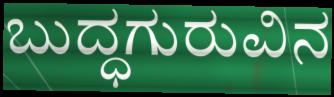
ಬುದ್ಧಗುರುವಿನ